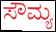
ಸೌಮ್ಯ